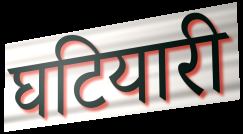
घटियारी